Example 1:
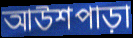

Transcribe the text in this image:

আউশপাড়া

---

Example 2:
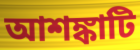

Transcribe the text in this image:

আশঙ্কাটি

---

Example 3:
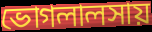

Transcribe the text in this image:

ভোগলালসায়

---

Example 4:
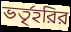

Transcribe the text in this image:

ভর্তৃহরির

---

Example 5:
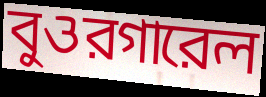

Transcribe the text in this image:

বুওরগারেল